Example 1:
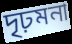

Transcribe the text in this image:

দৃঢ়মনা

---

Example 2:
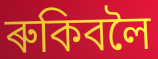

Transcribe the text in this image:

ৰুকিবলৈ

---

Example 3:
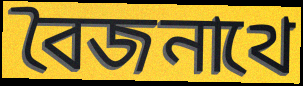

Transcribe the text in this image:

বৈজনাথে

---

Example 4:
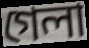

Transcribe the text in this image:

গেলা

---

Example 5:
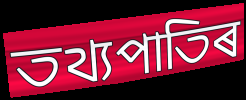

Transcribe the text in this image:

তথ্যপাতিৰ